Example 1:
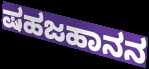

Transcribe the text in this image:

ಷಹಜಹಾನನ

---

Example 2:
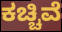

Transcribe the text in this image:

ಕಚ್ಚಿವೆ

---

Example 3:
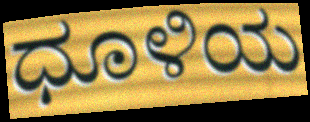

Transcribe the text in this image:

ಧೂಳಿಯ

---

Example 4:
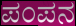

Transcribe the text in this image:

ಪಂಪನ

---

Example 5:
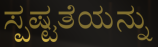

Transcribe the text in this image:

ಸ್ಪಷ್ಟತೆಯನ್ನು